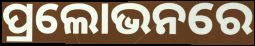
ପ୍ରଲୋଭନରେ